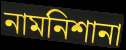
নামনিশানা